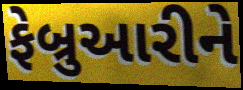
ફેબ્રુઆરીને